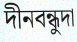
দীনবন্ধুদা